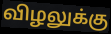
விழலுக்கு